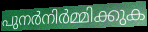
പുനർനിർമ്മിക്കുക